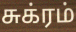
சுக்ரம்